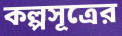
কল্পসূত্রের